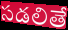
సడలితే